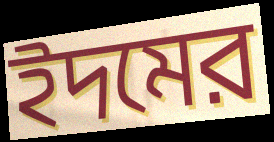
ইদমের